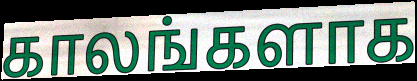
காலங்களாக